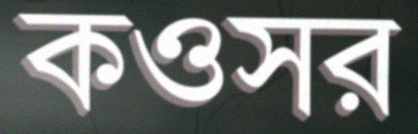
কওসর